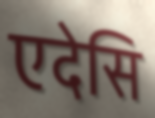
एदेसि